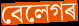
বেলেগৰ